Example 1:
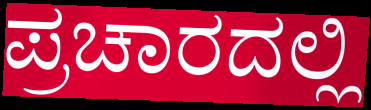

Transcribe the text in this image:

ಪ್ರಚಾರದಲ್ಲಿ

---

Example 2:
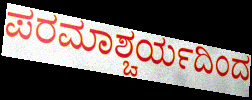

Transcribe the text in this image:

ಪರಮಾಶ್ಚರ್ಯದಿಂದ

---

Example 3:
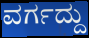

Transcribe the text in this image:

ವರ್ಗದ್ದು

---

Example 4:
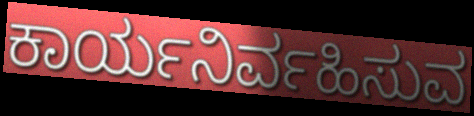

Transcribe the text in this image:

ಕಾರ್ಯನಿರ್ವಹಿಸುವ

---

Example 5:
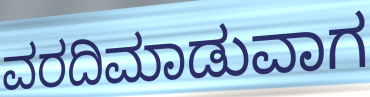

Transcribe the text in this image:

ವರದಿಮಾಡುವಾಗ